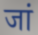
जां